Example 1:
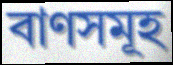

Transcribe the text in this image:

বাণসমূহ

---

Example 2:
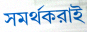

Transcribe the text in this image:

সমর্থকরাই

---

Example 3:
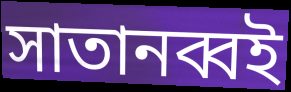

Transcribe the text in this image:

সাতানব্বই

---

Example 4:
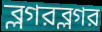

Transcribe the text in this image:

ব্লগরব্লগর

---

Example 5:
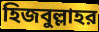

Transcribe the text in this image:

হিজবুল্লাহর